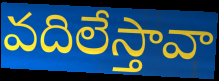
వదిలేస్తావా